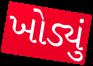
ખોડ્યું